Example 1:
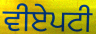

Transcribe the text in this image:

ਵੀਏਪਟੀ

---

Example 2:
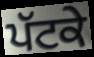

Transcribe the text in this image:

ਪੱਟਕੇ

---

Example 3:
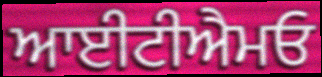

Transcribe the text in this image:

ਆਈਟੀਐਮਓ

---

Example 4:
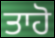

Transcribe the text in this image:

ਤਾਹੋ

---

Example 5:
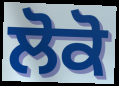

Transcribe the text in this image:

ਲੋਕੋ